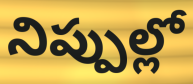
నిప్పుల్లో